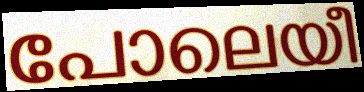
പോലെയീ